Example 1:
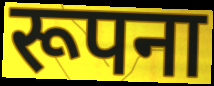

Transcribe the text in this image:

रूपना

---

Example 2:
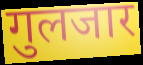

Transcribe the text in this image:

गुलजार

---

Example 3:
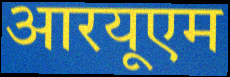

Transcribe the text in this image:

आरयूएम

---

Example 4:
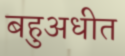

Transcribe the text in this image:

बहुअधीत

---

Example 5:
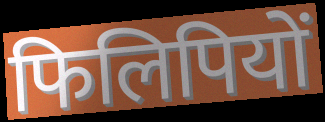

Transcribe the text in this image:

फिलिपियों